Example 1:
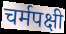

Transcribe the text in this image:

चर्मपक्षी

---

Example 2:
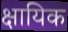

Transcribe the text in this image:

क्षायिक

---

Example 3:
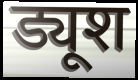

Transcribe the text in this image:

ड्यूश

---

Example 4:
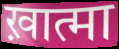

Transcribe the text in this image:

ख़ात्मा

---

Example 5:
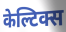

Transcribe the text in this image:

केल्टिक्स